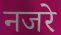
नजरे